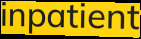
inpatient